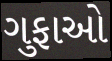
ગુફાઓ